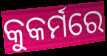
କୁକର୍ମରେ